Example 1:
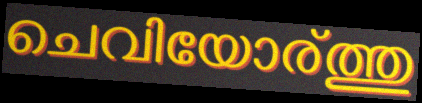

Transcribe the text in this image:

ചെവിയോര്ത്തു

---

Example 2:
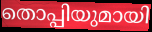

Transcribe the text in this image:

തൊപ്പിയുമായി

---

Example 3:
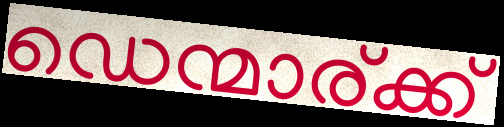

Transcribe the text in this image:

ഡെന്മാര്ക്ക്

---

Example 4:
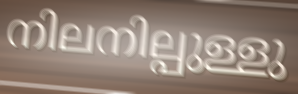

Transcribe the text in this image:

നിലനില്പുള്ളു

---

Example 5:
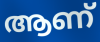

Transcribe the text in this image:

ആണ്